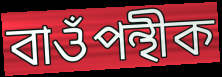
বাওঁপন্থীক